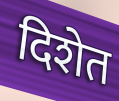
दिशेत